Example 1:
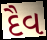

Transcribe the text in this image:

દૈવ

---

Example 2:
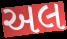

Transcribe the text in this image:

અલ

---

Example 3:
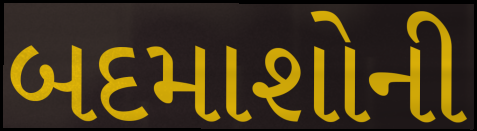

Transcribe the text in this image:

બદમાશોની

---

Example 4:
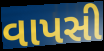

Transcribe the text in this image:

વાપસી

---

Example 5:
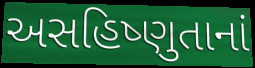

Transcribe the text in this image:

અસહિષ્ણુતાનાં